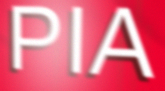
PIA